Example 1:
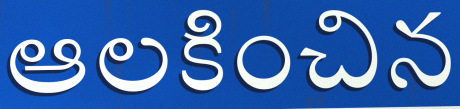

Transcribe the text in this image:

ఆలకించిన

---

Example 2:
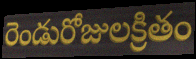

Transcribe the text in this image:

రెండురోజులక్రితం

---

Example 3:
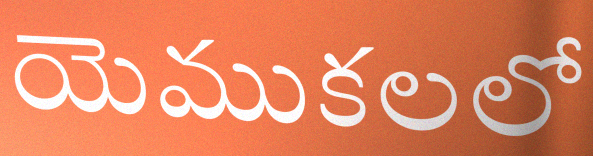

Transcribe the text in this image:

యెముకలలో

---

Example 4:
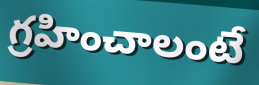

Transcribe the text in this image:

గ్రహించాలంటే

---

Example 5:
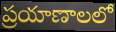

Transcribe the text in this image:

ప్రయాణాలలో